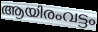
ആയിരംവട്ടം